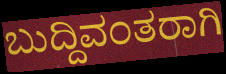
ಬುದ್ದಿವಂತರಾಗಿ